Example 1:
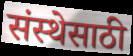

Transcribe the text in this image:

संस्थेसाठी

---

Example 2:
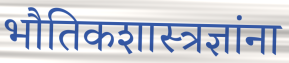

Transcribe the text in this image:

भौतिकशास्त्रज्ञांना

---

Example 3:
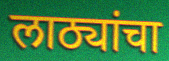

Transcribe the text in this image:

लाठ्यांचा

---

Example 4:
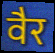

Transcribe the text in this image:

वैर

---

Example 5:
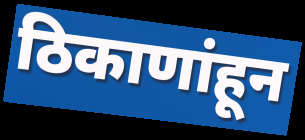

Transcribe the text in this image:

ठिकाणांहून